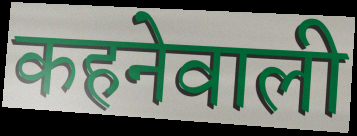
कहनेवाली